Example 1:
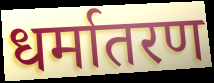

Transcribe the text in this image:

धर्मातरण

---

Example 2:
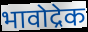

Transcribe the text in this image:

भावोद्रेक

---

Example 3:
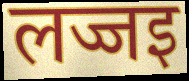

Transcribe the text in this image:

लज्जइ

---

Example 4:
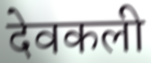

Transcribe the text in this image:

देवकली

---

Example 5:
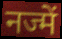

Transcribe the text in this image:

नज्में